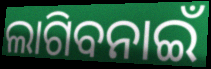
ଲାଗିବନାଇଁ